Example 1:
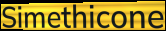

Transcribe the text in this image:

Simethicone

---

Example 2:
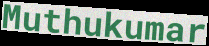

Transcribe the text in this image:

Muthukumar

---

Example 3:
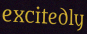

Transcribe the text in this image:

excitedly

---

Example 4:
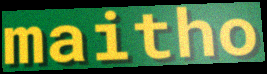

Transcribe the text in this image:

maitho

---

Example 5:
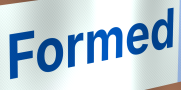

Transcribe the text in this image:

Formed